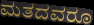
ಮತದವರೂ